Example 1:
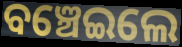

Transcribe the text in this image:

ବଞ୍ଚେଇଲେ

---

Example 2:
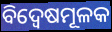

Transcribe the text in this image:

ବିଦ୍ୱେଷମୂଳକ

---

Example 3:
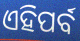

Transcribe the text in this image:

ଏହିପର୍ବ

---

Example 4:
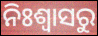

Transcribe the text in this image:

ନିଃଶ୍ବାସରୁ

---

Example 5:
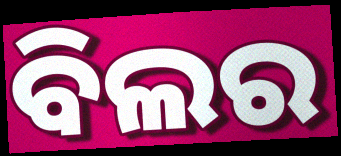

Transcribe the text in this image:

ବିଲର